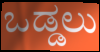
ಒಡ್ಡಲು